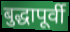
बुद्धापूर्वी